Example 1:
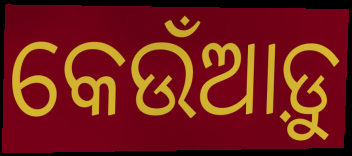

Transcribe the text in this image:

କେଉଁଆଡ଼ୁ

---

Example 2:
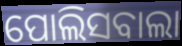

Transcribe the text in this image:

ପୋଲିସବାଲା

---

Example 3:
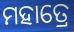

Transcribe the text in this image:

ମହାତ୍ରେ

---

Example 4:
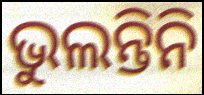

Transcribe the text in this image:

ଭୁଲନ୍ତିନି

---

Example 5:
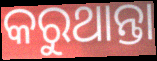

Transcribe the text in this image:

କରୁଥାନ୍ତା